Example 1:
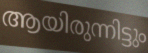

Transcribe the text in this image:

ആയിരുന്നിട്ടും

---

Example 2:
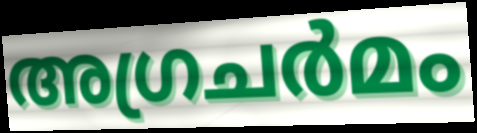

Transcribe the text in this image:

അഗ്രചർമം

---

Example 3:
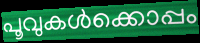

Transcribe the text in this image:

പൂവുകൾക്കൊപ്പം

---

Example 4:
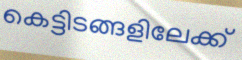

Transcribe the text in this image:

കെട്ടിടങ്ങളിലേക്ക്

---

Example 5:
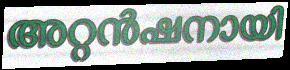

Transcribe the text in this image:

അറ്റൻഷനായി